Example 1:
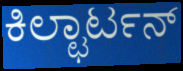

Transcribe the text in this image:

ಕಿಲ್ಟಾರ್ಟನ್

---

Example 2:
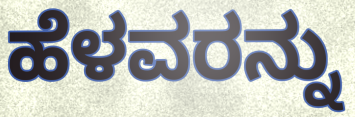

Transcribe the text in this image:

ಹೆಳವರನ್ನು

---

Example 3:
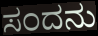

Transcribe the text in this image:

ಸಂದನು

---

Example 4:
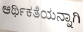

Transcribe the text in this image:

ಆರ್ಥಿಕತೆಯನ್ನಾಗಿ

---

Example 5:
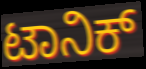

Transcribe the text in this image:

ಟಾನಿಕ್